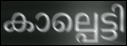
കാല്പെട്ടി